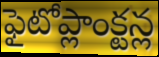
ఫైటోప్లాంక్టన్ల